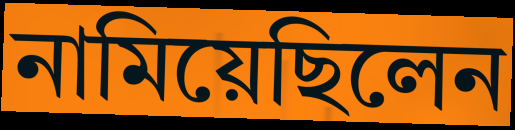
নামিয়েছিলেন